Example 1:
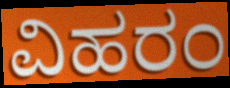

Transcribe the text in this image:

ವಿಹರಂ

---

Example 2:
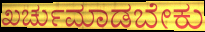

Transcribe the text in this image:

ಖರ್ಚುಮಾಡಬೇಕು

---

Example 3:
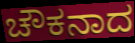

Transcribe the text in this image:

ಚೌಕನಾದ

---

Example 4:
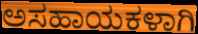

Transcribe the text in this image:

ಅಸಹಾಯಕಳಾಗಿ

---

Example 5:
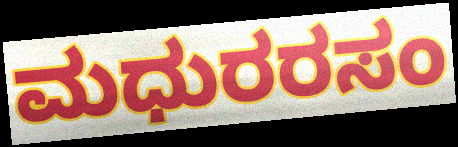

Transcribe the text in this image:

ಮಧುರರಸಂ